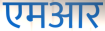
एमआर